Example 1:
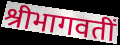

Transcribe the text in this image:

श्रीभागवतीं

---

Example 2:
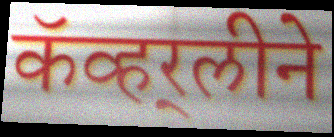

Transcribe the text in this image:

कॅव्हर्लीने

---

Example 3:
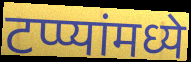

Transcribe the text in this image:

टप्प्यांमध्ये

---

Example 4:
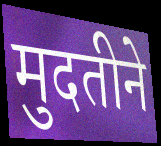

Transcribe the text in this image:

मुदतीने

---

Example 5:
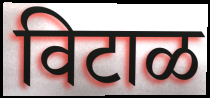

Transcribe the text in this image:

विटाळ